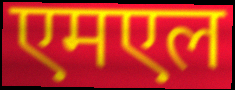
एमएल